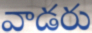
వాడరు